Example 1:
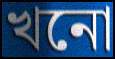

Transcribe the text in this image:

খনো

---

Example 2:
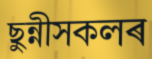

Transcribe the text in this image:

ছুন্নীসকলৰ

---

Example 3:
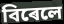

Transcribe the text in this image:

বিৰেলে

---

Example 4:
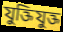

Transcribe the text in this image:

যুক্তিযুক্ত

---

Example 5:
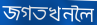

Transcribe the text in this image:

জগতখনলৈ